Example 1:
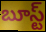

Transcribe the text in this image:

బూస్ట్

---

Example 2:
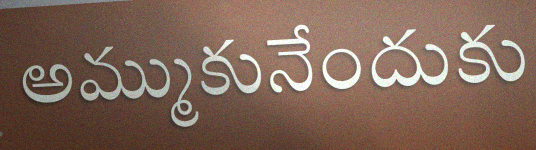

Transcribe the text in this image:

అమ్ముకునేందుకు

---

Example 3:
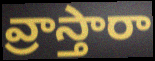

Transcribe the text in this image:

వ్రాస్తారా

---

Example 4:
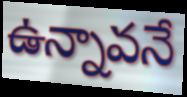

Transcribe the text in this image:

ఉన్నావనే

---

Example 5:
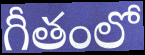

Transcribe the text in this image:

గీతంలో